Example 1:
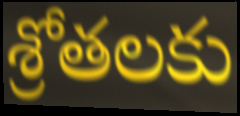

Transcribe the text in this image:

శ్రోతలకు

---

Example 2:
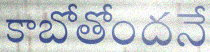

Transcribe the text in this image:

కాబోతోందనే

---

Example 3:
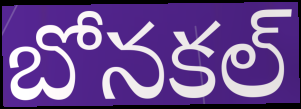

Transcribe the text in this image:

బోనకల్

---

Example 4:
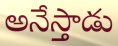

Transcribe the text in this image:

అనేస్తాడు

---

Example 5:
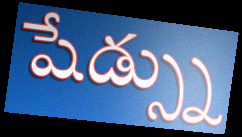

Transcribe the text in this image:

షేడ్స్ను